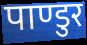
पाण्डुर